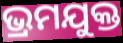
ଭ୍ରମଯୁକ୍ତ